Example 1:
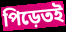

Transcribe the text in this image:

পিড়েতই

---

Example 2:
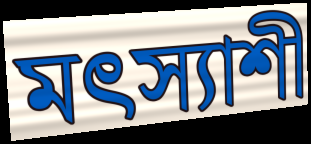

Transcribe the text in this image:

মৎস্যাশী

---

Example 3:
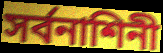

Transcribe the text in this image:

সর্বনাশিনী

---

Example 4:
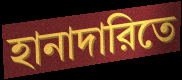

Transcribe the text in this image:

হানাদারিতে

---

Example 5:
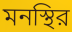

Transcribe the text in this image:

মনস্থির